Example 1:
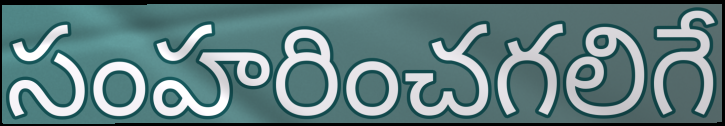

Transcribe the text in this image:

సంహరించగలిగే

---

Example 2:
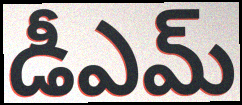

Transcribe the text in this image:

డీఎమ్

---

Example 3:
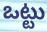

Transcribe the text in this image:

ఒట్టు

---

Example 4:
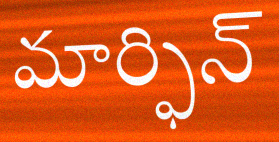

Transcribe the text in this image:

మార్ఫిన్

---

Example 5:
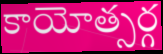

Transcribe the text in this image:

కాయోత్సర్గ